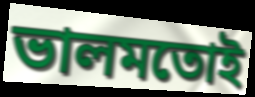
ভালমতোই